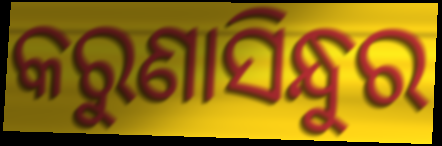
କରୁଣାସିନ୍ଧୁର